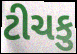
ટીચકુ